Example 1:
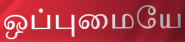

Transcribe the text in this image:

ஒப்புமையே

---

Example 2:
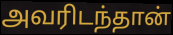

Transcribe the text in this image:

அவரிடந்தான்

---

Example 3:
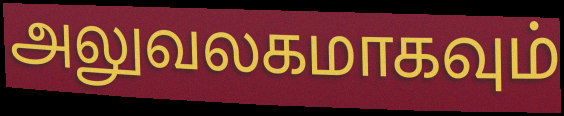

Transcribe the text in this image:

அலுவலகமாகவும்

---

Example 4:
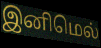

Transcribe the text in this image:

இனிமெல்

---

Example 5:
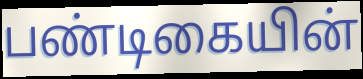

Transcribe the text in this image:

பண்டிகையின்